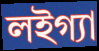
লইগ্যা